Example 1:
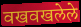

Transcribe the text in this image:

वखवखलेले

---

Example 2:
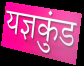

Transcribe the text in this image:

यज्ञकुंड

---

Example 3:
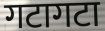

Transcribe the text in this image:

गटागटा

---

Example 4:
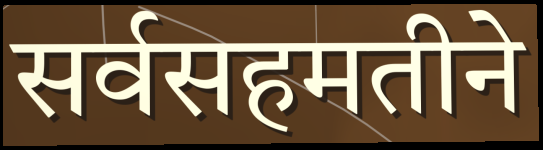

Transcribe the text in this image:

सर्वसहमतीने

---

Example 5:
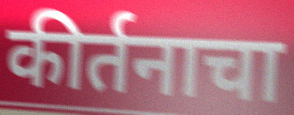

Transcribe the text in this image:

कीर्तनाचा